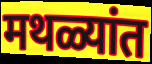
मथळ्यांत